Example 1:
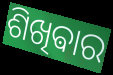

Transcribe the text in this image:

ଶିଖିଵାର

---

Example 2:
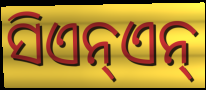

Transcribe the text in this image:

ସିଏନ୍ଏନ୍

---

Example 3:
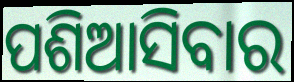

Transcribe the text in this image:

ପଶିଆସିବାର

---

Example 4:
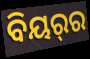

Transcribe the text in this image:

ବିୟର୍‌ର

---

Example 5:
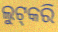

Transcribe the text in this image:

ଲୁଟ୍‌କରି